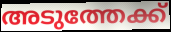
അടുത്തേക്ക്